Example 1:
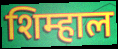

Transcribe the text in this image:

शिम्हाल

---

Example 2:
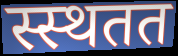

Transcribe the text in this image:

स्स्थतत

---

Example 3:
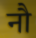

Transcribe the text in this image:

नौ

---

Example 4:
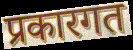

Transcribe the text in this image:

प्रकारगत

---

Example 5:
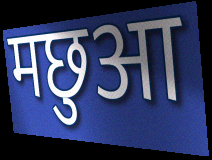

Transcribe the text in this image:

मछुआ